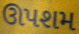
ઊપશમ